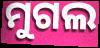
ମୁଗଲ